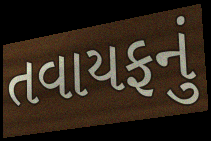
તવાયફનું